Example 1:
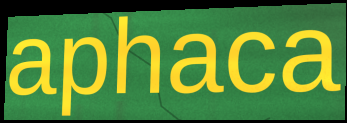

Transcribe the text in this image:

aphaca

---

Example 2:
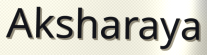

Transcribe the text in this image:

Aksharaya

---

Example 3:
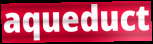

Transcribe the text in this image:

aqueduct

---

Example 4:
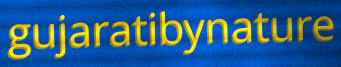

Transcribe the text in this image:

gujaratibynature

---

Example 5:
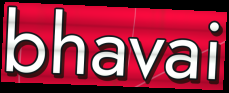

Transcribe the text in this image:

bhavai